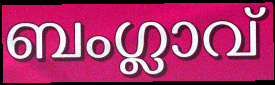
ബംഗ്ലാവ്